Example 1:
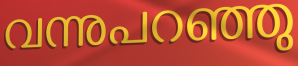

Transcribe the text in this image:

വന്നുപറഞ്ഞു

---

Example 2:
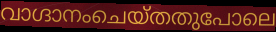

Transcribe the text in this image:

വാഗ്ദാനംചെയ്തതുപോലെ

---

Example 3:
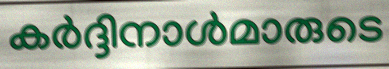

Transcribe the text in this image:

കർദ്ദിനാൾമാരുടെ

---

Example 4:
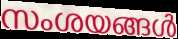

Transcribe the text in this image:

സംശയങ്ങൾ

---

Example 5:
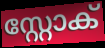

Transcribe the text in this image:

സ്റ്റോക്